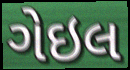
ગેઇલ